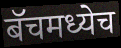
बॅचमध्येच